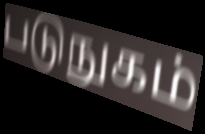
படுநுகம்